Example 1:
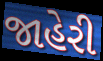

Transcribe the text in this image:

જાહેરી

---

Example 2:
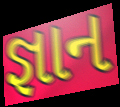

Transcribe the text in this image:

જ્ઞાન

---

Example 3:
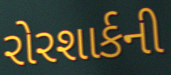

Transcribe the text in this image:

રોરશાર્કની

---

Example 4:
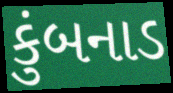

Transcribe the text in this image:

કુંબનાડ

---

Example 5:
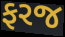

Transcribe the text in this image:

ફરજ